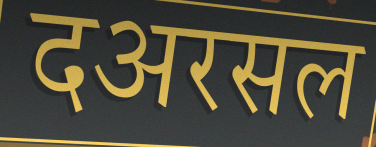
दअरसल